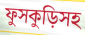
ফুসকুড়িসহ